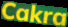
Cakra